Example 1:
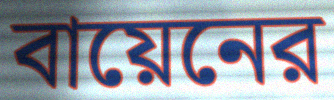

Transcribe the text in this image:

বায়েনের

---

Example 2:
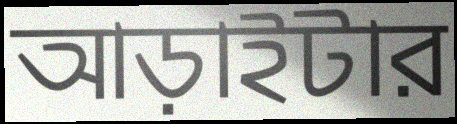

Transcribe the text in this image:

আড়াইটার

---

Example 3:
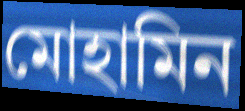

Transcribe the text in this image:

মোহামিন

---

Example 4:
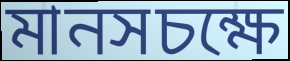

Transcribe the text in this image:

মানসচক্ষে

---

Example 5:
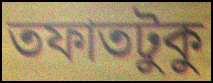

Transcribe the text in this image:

তফাতটুকু